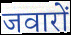
जवारों